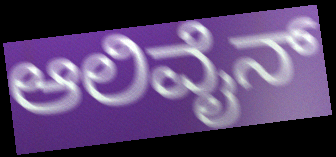
ಆಲಿವೈನ್